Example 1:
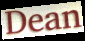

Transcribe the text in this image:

Dean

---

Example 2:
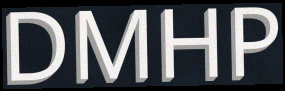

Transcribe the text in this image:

DMHP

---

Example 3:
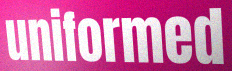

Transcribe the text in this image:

uniformed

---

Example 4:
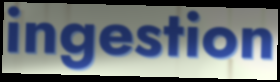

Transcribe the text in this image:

ingestion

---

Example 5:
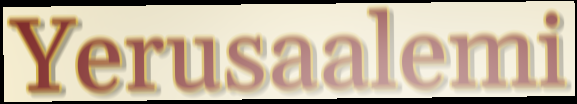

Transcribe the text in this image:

Yerusaalemi